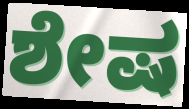
ಶೇಷ